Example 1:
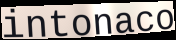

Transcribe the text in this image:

intonaco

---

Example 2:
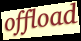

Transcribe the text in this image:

offload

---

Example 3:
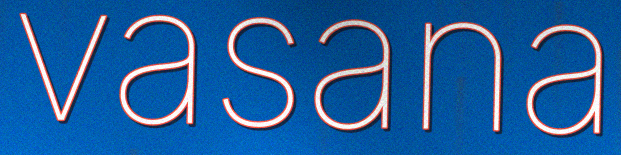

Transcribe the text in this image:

vasana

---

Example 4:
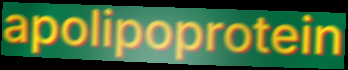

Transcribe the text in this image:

apolipoprotein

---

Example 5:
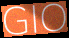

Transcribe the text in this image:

GIO